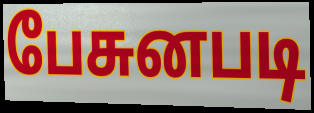
பேசுனபடி